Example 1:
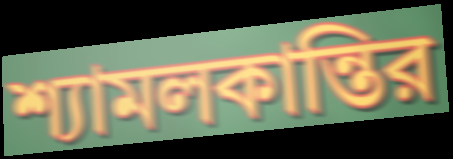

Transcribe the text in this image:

শ্যামলকান্তির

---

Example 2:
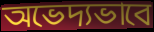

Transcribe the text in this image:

অভেদ্যভাবে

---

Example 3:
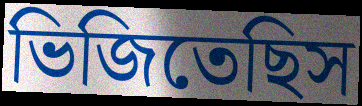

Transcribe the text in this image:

ভিজিতেছিস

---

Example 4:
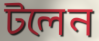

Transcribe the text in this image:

টলেন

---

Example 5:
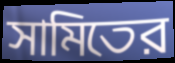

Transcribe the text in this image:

সামিতের